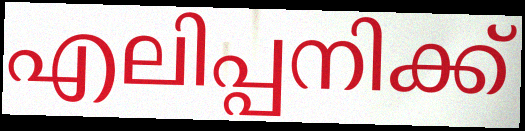
എലിപ്പനിക്ക്